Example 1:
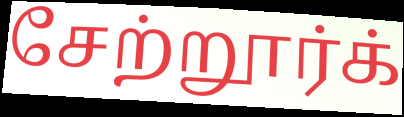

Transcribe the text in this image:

சேற்றூர்க்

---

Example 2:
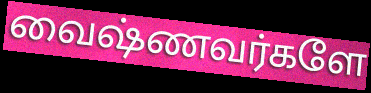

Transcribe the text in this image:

வைஷ்ணவர்களே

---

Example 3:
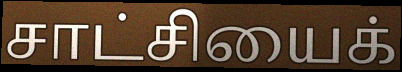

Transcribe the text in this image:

சாட்சியைக்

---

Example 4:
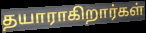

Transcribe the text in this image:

தயாராகிறார்கள்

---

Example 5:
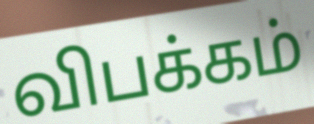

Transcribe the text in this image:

விபக்கம்